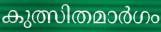
കുത്സിതമാർഗം